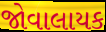
જોવાલાયક